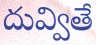
దువ్వితే